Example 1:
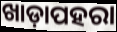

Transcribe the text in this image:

ଖାଡ଼ାପହରା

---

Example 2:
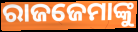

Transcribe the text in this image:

ରାଜଜେମାଙ୍କୁ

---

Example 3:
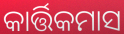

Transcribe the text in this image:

କାର୍ତ୍ତିକମାସ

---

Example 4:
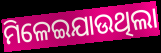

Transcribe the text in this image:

ମିଳେଇଯାଉଥିଲା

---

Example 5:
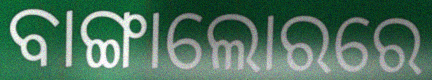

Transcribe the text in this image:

ବାଙ୍ଗାଲୋରରେ